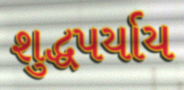
શુદ્ધપર્યાય